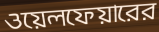
ওয়েলফেয়ারের